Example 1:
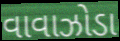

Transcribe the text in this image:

વાવાઝોડા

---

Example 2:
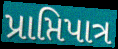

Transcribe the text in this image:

પ્રાપ્તિપાત્ર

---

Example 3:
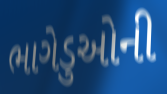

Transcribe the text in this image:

ભાગેડુઓની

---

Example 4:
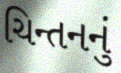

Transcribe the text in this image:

ચિન્તનનું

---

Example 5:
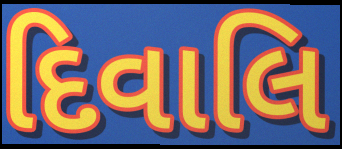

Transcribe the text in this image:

દિવાલિ